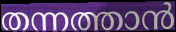
തന്നത്താൻ